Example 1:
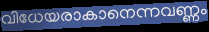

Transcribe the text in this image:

വിധേയരാകാനെന്നവണ്ണം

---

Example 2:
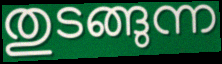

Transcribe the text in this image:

തുടങ്ങുന്ന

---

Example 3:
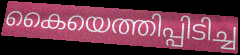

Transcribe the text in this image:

കൈയെത്തിപ്പിടിച്ച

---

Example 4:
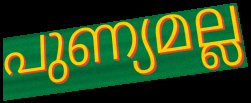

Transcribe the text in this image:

പുണ്യമല്ല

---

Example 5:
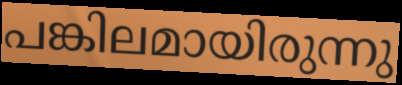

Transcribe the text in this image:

പങ്കിലമായിരുന്നു